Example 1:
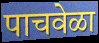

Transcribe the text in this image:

पाचवेळा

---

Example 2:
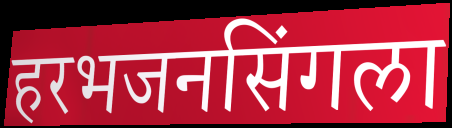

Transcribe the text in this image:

हरभजनसिंगला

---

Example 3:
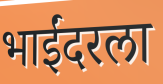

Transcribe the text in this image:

भाईंदरला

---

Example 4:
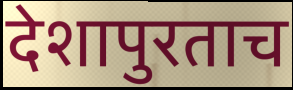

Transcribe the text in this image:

देशापुरताच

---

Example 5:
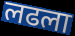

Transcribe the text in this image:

लढला